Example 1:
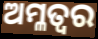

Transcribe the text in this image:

ଅମ୍ଳତ୍ଵର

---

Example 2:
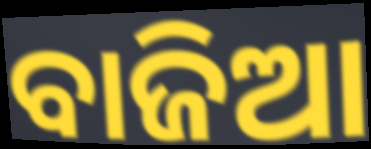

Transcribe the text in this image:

ବାଜିଆ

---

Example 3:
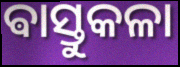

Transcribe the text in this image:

ଵାସ୍ତୁକଳା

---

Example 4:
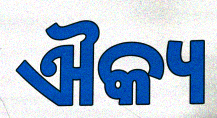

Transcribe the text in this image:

ଐକ୍ୟ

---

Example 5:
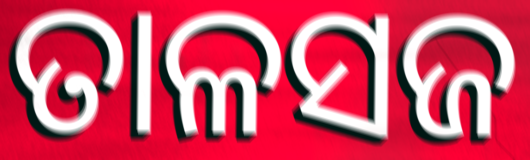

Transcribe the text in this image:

ତାଳସଜ